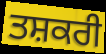
ਤਸ਼ਕਰੀ